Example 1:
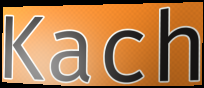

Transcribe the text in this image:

Kach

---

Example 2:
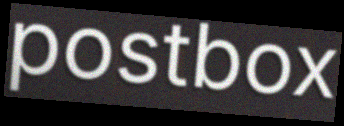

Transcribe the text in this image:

postbox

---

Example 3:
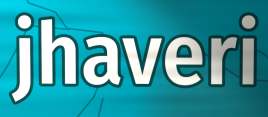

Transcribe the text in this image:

jhaveri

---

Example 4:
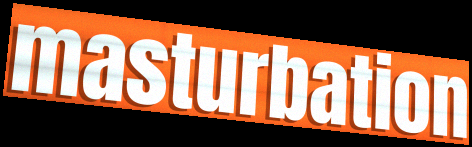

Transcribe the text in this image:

masturbation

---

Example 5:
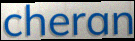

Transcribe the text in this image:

cheran